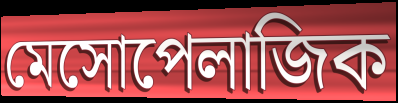
মেসোপেলাজিক